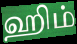
ஹிம்